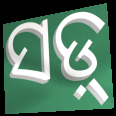
ସଡ଼୍